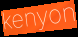
kenyon